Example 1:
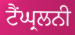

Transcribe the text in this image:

ਟੈਂਘ੍ਰਲਨੀ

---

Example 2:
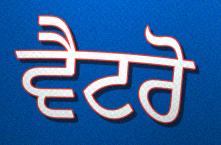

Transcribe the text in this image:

ਵੈਟਰੋ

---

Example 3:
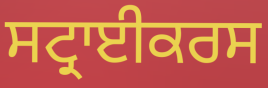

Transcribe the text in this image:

ਸਟ੍ਰਾਈਕਰਸ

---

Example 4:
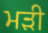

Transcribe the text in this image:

ਮੜੀ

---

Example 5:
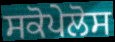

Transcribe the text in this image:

ਸਕੋਪੇਲੋਸ